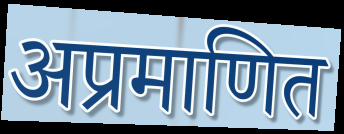
अप्रमाणित